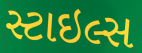
સ્ટાઇલ્સ